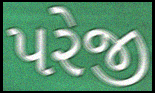
પરેજી